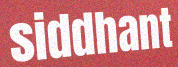
siddhant